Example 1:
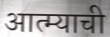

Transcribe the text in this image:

आत्म्याची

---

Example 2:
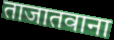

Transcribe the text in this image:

ताजातवाना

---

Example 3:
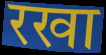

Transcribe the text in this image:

रखा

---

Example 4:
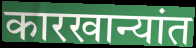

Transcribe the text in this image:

कारखान्यांत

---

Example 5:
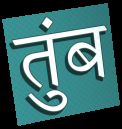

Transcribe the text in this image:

तुंब